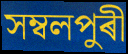
সম্বলপুৰী